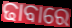
ଢାବାରେ